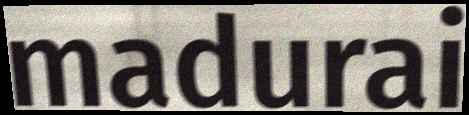
madurai